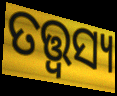
ତତ୍ତ୍ୱସ୍ୟ